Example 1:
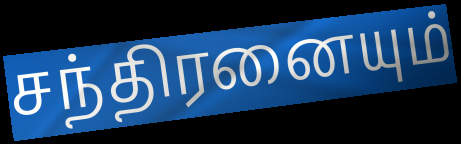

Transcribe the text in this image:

சந்திரனையும்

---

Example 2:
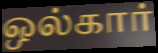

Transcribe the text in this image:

ஒல்கார்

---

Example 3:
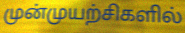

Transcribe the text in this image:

முன்முயற்சிகளில்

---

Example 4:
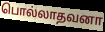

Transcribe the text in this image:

பொல்லாதவனா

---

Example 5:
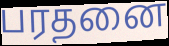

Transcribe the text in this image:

பரதனை